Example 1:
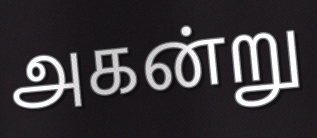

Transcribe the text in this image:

அகன்று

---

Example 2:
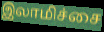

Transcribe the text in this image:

இலாமிச்சை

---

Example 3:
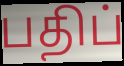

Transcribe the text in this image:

பதிப்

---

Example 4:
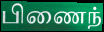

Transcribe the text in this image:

பிணைந்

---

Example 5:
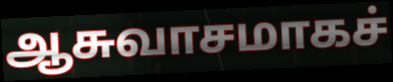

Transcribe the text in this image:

ஆசுவாசமாகச்